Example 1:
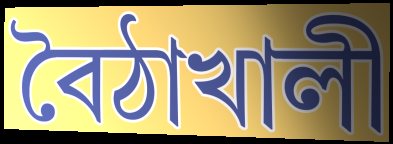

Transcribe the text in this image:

বৈঠাখালী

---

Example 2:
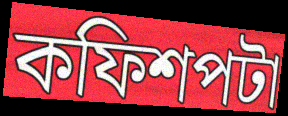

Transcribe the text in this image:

কফিশপটা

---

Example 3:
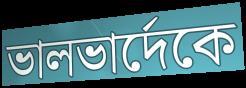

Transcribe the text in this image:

ভালভার্দেকে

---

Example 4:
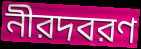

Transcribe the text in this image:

নীরদবরণ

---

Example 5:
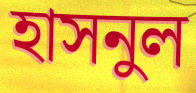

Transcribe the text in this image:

হাসনুল